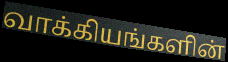
வாக்கியங்களின்